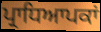
ਪ੍ਰਾਧਿਆਪਕਾਂ